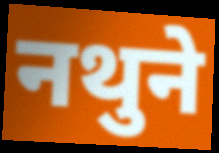
नथुने